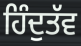
ਹਿੰਦੁਤੱਵ